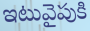
ఇటువైపుకి